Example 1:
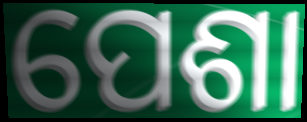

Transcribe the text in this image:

ପେଶା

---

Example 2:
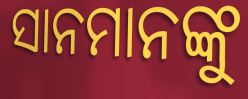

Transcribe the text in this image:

ସାନମାନଙ୍କୁ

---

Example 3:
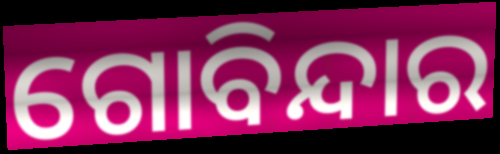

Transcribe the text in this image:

ଗୋବିନ୍ଦାର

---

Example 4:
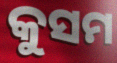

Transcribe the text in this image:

କୁସମ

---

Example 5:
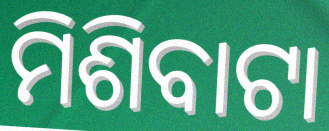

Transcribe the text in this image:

ମିଶିବାଟା